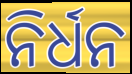
ନିର୍ଧନ